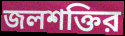
জলশক্তির